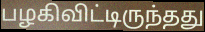
பழகிவிட்டிருந்தது